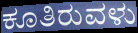
ಕೂತಿರುವಳು